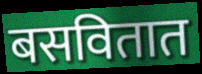
बसवितात